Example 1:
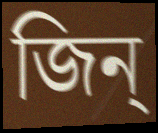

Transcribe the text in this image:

জিন্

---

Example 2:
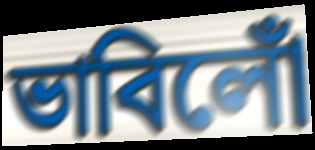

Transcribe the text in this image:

ভাবিলোঁ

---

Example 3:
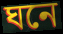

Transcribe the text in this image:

ঘনে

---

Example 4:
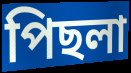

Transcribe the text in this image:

পিছলা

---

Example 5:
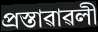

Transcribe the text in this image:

প্ৰস্তাৱাৱলী